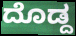
ದೊಡ್ದ